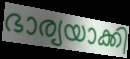
ഭാര്യയാക്കി